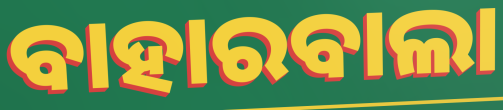
ବାହାରବାଲା